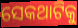
ସେକଥାଟିକୁ